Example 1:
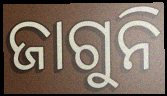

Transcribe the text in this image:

ଜାଗୁନି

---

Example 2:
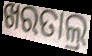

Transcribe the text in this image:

ଖରତାଲ୍ର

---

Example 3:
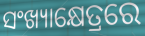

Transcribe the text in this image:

ସଂଖ୍ୟାକ୍ଷେତ୍ରରେ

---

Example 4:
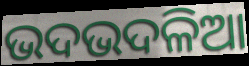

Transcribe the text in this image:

ଭଦଭଦଳିଆ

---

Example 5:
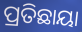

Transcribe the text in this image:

ପ୍ରତିଛାୟା